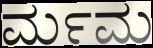
ರ್ಮಮ